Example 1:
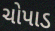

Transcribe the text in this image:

ચોપાડ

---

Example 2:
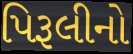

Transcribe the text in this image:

પિરૂલીનો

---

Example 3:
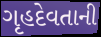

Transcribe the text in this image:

ગૃહદેવતાની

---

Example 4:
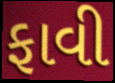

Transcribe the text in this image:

ફાવી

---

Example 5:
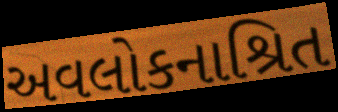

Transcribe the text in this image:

અવલોકનાશ્રિત